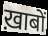
ख़ाबों